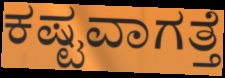
ಕಷ್ಟವಾಗತ್ತೆ